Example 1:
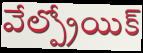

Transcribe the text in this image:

వేల్ప్రోయిక్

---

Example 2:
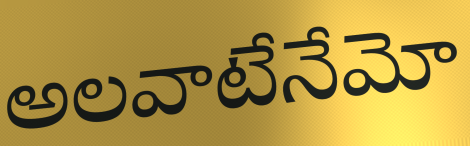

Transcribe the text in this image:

అలవాటేనేమో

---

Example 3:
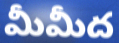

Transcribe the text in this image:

మీమీద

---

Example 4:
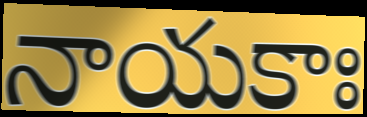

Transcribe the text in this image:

నాయకాః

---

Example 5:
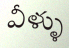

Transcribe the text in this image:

వీళ్ళు